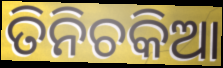
ତିନିଚକିଆ